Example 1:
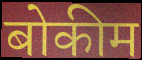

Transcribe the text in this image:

बोकीम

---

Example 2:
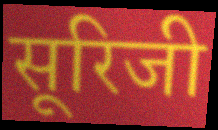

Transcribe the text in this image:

सूरिजी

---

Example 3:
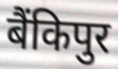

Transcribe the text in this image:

बैंकिपुर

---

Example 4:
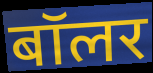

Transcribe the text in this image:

बॉलर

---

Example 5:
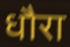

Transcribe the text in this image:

धौरा